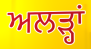
ਅਲੜ੍ਹਾਂ